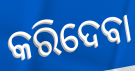
କରିଦେବା